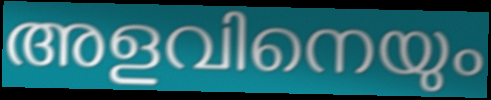
അളവിനെയും